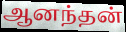
ஆனந்தன்